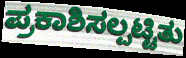
ಪ್ರಕಾಶಿಸಲ್ಪಟ್ಟಿತು